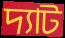
দ্যাট